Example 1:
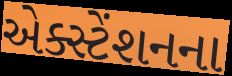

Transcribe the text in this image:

એક્સ્ટેંશનના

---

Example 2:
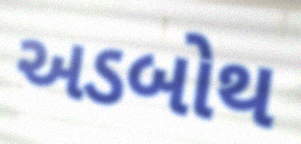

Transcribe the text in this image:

અડબોથ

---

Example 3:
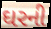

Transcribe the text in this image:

ઘરની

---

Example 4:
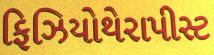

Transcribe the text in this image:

ફિઝિયોથેરાપીસ્ટ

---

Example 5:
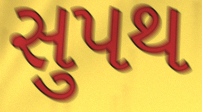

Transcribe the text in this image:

સુપથ